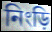
নিংড়ি